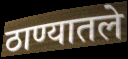
ठाण्यातले